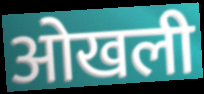
ओखली